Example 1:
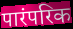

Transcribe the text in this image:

पारंपरिक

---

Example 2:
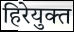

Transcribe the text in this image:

हिरेयुक्त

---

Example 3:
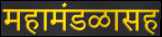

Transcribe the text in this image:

महामंडळासह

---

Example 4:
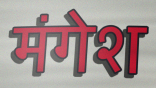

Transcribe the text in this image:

मंगेश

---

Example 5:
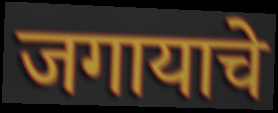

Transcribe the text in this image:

जगायाचे